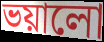
ভয়ালো